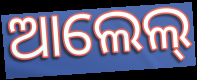
ଆଲେଲ୍